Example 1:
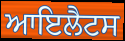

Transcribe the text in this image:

ਆਇਲੈਟਸ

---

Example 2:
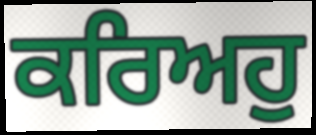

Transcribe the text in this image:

ਕਰਿਅਹੁ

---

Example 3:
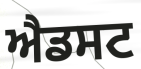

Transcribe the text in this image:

ਐਡਸਟ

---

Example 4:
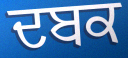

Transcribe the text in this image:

ਦਬਕ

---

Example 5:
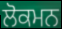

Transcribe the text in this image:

ਲੋਕਮਨ